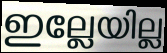
ഇല്ലേയില്ല